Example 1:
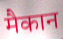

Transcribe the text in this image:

मैकान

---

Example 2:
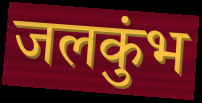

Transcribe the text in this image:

जलकुंभ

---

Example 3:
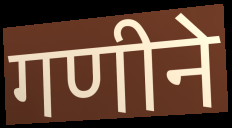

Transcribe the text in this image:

गणीने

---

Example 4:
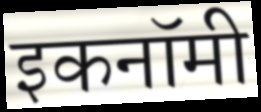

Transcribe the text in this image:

इकनॉमी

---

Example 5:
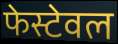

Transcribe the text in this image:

फेस्टेवल